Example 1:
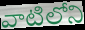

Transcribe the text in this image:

వాటిలోని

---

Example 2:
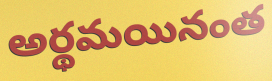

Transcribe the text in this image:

అర్థమయినంత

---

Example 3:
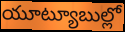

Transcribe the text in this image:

యూట్యూబుల్లో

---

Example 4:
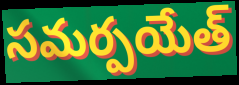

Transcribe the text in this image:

సమర్పయేత్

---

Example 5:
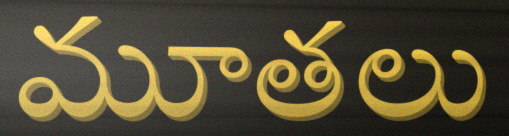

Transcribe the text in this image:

మూతలు